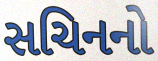
સચિનનો